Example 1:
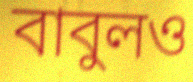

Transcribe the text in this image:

বাবুলও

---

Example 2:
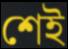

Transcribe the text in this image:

শেই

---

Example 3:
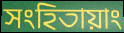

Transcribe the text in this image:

সংহিতায়াং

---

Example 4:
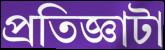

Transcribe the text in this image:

প্রতিজ্ঞাটা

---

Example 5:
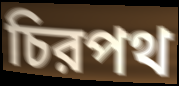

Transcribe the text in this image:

চিরপথ